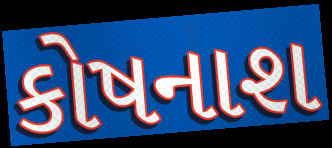
કોષનાશ